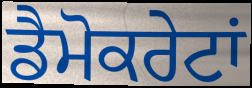
ਡੈਮੋਕਰੇਟਾਂ